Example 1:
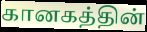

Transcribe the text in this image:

கானகத்தின்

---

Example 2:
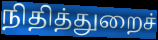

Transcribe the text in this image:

நிதித்துறைச்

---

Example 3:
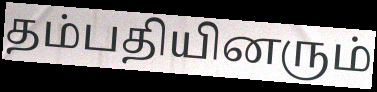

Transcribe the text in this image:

தம்பதியினரும்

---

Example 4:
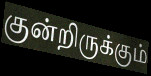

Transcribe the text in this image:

குன்றிருக்கும்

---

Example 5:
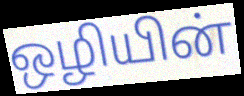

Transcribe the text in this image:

ஒழியின்